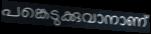
പങ്കെടുക്കുവാനാണ്